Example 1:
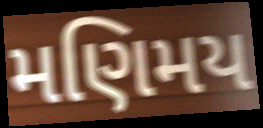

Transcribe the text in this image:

મણિમય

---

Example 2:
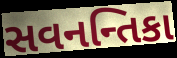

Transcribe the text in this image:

સવનન્તિકા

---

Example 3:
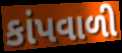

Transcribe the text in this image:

કાંપવાળી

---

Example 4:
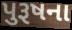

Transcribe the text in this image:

પુરૂષના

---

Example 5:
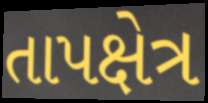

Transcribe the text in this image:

તાપક્ષેત્ર